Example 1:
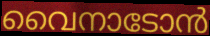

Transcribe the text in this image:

വൈനാടോൻ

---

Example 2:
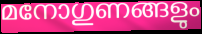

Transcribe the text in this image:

മനോഗുണങ്ങളും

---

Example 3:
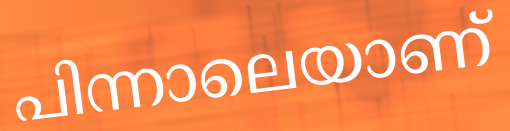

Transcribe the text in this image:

പിന്നാലെയാണ്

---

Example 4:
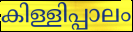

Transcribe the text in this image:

കിള്ളിപ്പാലം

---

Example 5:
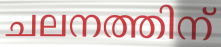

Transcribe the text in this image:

ചലനത്തിന്